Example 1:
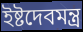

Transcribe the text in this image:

ইষ্টদেবমন্ত্র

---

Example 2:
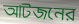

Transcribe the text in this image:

আটজনের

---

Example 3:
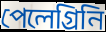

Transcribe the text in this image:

পেলেগ্রিনি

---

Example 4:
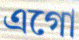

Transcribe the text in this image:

এগো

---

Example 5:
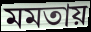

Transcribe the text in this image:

মমতায়